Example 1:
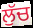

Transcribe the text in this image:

ਲੁੱਚ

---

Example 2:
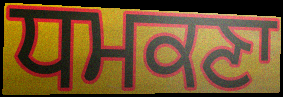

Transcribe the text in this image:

ਧਮਕਣਾ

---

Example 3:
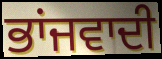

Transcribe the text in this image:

ਭਾਂਜਵਾਦੀ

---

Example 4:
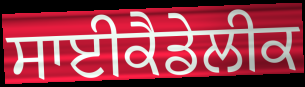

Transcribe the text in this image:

ਸਾਈਕੈਡੇਲੀਕ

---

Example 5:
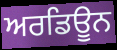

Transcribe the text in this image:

ਅਰਡਿਊਨ